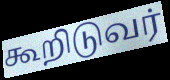
கூறிடுவர்